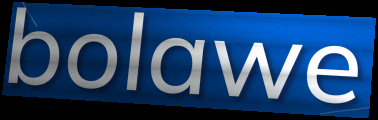
bolawe